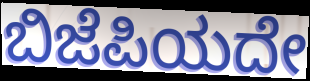
ಬಿಜೆಪಿಯದೇ